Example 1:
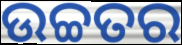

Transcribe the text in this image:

ଉଚ୍ଚତର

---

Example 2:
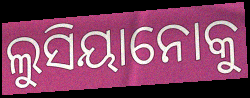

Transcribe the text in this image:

ଲୁସିୟାନୋକୁ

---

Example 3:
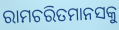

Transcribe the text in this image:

ରାମଚରିତମାନସକୁ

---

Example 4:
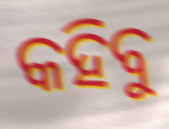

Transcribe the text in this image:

କହିବୁ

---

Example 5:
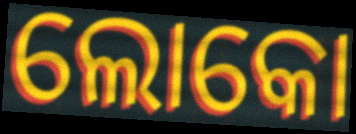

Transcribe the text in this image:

ଲୋକୋ